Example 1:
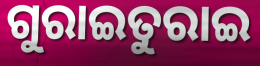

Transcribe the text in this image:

ଗୁରାଇତୁରାଇ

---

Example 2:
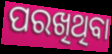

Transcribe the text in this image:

ପରଖିଥିବା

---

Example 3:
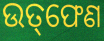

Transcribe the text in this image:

ଉତ୍‌ଫେଣ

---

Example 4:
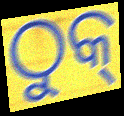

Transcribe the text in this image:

ଠୁକ୍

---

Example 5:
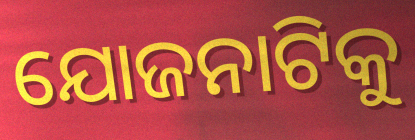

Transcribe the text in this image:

ଯୋଜନାଟିକୁ